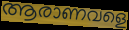
ആരാണവളെ